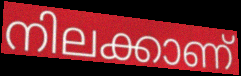
നിലക്കാണ്